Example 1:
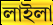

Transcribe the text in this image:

লাইলা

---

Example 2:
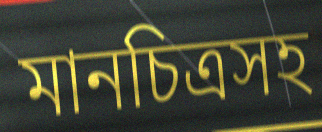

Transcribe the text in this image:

মানচিত্রসহ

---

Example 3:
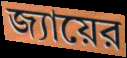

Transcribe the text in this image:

জ্যায়ের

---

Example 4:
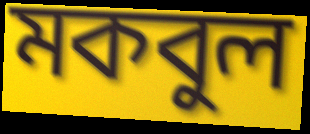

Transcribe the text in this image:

মকবুল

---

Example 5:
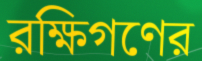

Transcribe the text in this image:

রক্ষিগণের